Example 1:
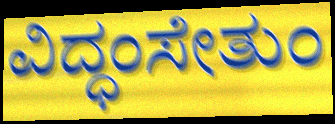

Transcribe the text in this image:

ವಿದ್ಧಂಸೇತುಂ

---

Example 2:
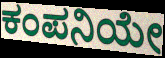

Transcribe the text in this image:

ಕಂಪನಿಯೇ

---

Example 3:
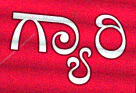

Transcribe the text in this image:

ಗ್ಯಾರಿ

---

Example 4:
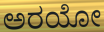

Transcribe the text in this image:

ಅರಯೋ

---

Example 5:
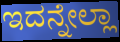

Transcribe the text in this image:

ಇದನ್ನೇಲ್ಲಾ